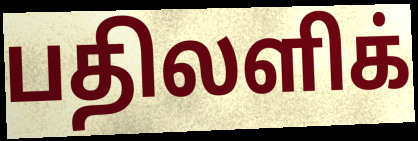
பதிலளிக்